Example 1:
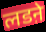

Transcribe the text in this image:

लडऩे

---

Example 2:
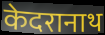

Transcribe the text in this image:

केदरानाथ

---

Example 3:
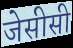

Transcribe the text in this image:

जेसीसी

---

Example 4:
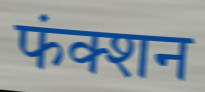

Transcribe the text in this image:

फंक्शन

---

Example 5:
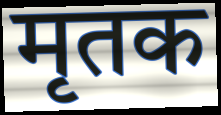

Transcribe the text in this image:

मृतक